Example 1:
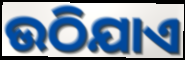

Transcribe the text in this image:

ଉଠିଯାଏ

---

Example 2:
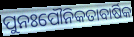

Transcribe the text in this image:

ପୁନଃପୌନିକତାବାର୍ଷିକ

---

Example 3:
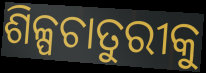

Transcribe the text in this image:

ଶିଳ୍ପଚାତୁରୀକୁ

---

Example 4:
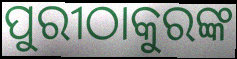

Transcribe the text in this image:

ପୁରୀଠାକୁରଙ୍କ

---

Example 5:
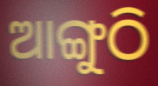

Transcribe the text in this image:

ଆଙ୍ଗୁଠି